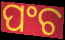
ପଂଚ